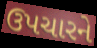
ઉપચારને